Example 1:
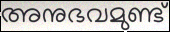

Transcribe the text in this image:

അനുഭവമുണ്ട്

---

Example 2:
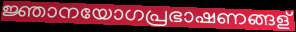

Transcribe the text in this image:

ജ്ഞാനയോഗപ്രഭാഷണങ്ങള്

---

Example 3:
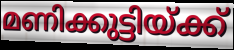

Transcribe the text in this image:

മണിക്കുട്ടിയ്ക്ക്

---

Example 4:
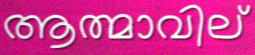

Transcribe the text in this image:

ആത്മാവില്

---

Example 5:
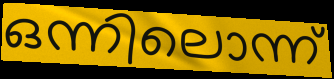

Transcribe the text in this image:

ഒന്നിലൊന്ന്